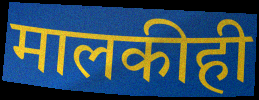
मालकीही